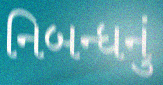
નિબન્ધનું